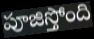
పూజిస్తోంది